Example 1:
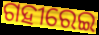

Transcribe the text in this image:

ଗହୀରେଇ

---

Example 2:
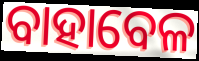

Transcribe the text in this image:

ବାହାବେଳ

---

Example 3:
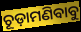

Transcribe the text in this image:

ଚୂଡ଼ାମଣିବାବୁ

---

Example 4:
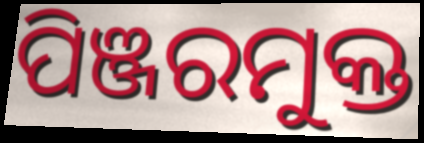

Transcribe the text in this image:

ପିଞ୍ଜରମୁକ୍ତ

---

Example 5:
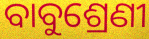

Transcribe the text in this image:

ବାବୁଶ୍ରେଣୀ